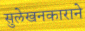
सुलेखनकाराने